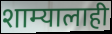
शाम्यालाही